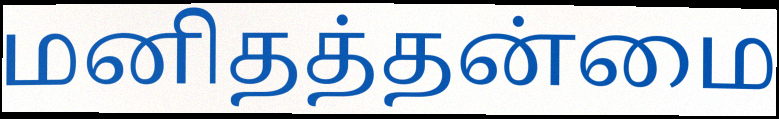
மனிதத்தன்மை